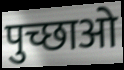
पुच्छाओ